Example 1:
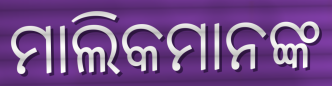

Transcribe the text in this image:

ମାଲିକମାନଙ୍କ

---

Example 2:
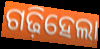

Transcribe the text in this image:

ଗଢ଼ିହେଲା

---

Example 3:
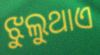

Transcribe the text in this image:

ଝୁଲୁଥାଏ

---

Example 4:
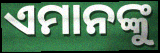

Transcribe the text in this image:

ଏମାନଙ୍କୁ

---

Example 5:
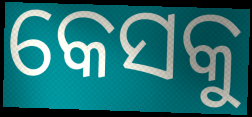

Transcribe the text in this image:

କେସକୁ